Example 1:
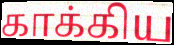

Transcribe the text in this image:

காக்கிய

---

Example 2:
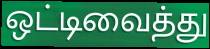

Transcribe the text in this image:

ஒட்டிவைத்து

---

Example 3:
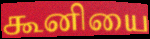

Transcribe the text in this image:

கூனியை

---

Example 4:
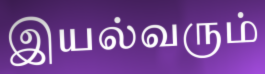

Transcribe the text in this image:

இயல்வரும்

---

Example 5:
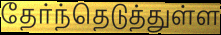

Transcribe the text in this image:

தேர்ந்தெடுத்துள்ள